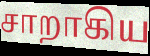
சாறாகிய